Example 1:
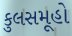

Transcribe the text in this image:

કુલસમૂહો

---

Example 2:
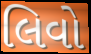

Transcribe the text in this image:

લિવો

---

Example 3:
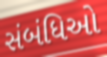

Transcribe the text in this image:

સંબંધિઓ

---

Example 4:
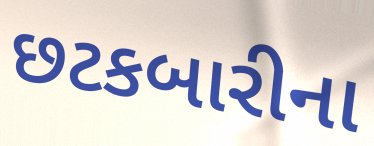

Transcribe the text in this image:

છટકબારીના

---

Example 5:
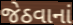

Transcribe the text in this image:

જેઠવાનાં